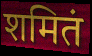
शमितं